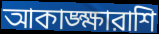
আকাঙ্ক্ষারাশি